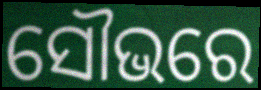
ସୌଭରେ